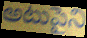
అటుపైని